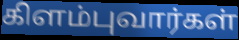
கிளம்புவார்கள்